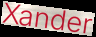
Xander